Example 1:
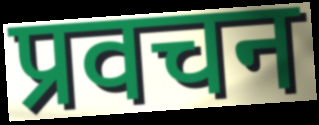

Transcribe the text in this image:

प्रवचन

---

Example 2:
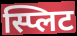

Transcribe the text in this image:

स्प्लिट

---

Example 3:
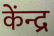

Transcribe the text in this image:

केंन्द्र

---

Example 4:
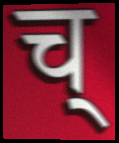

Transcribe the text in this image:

च्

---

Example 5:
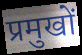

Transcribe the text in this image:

प्रमुखों